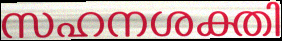
സഹനശക്തി